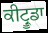
ਕੀਟ੍ਰੂਡਾ